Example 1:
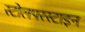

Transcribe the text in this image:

स्टोलपरस्टाइन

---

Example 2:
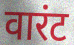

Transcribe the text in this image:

वारंट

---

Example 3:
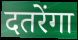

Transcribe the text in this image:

दतरेंगा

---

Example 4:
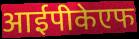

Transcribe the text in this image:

आईपीकेएफ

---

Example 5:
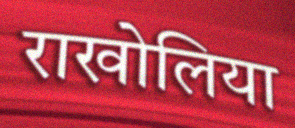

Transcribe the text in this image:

राखोलिया